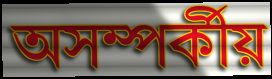
অসম্পর্কীয়